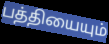
பத்தியையும்